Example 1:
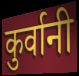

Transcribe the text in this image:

कुर्वानी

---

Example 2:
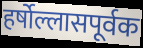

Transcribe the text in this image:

हर्षोल्लासपूर्वक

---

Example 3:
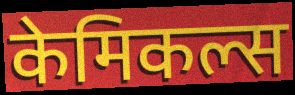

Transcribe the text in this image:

केमिकल्स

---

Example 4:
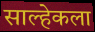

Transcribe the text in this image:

साल्हेकला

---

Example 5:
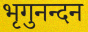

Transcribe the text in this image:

भृगुनन्दन